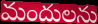
మందులను